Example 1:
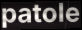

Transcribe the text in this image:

patole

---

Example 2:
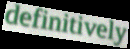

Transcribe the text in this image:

definitively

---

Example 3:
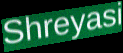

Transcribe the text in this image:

Shreyasi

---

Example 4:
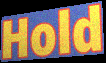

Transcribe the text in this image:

Hold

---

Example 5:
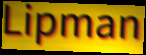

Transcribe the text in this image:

Lipman